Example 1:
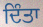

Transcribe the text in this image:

ਦਿੰਤਾ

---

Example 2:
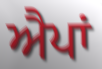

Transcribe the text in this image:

ਐਪਾਂ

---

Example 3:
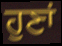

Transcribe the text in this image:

ਹੁਣਾਂ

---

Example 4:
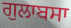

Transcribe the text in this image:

ਗੁਲਾਬਸਾ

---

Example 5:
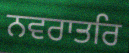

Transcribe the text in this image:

ਨਵਰਾਤਰਿ